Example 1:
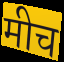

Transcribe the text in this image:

मीच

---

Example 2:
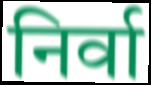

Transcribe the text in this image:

निर्वा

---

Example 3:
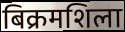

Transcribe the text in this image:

बिक्रमशिला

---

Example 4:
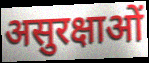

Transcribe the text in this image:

असुरक्षाओं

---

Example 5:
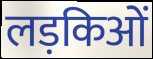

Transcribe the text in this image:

लड़किओं